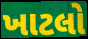
ખાટલો